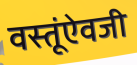
वस्तूंऐवजी